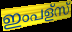
ഇംപള്സ്